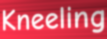
Kneeling